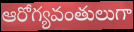
ఆరోగ్యవంతులుగా